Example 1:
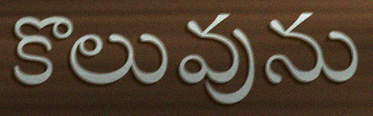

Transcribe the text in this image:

కొలువును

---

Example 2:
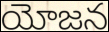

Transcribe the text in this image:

యోజన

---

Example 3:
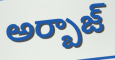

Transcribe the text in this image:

అర్బాజ్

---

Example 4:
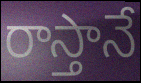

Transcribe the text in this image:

రాస్తానే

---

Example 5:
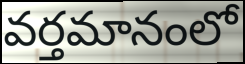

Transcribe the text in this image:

వర్తమానంలో